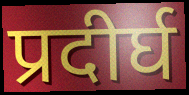
प्रदीर्घ